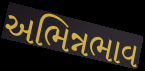
અભિન્નભાવ